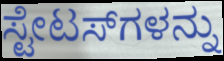
ಸ್ಟೇಟಸ್‌ಗಳನ್ನು